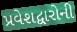
પ્રવેશદ્વારોની